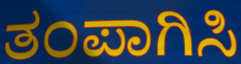
ತಂಪಾಗಿಸಿ